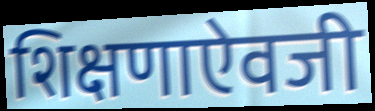
शिक्षणाऐवजी